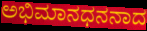
ಅಭಿಮಾನಧನನಾದ